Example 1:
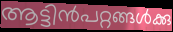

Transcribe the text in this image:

ആട്ടിൻപറ്റങ്ങൾക്കു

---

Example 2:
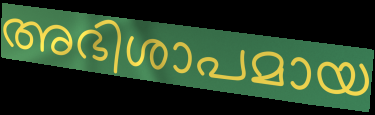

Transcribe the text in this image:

അഭിശാപമായ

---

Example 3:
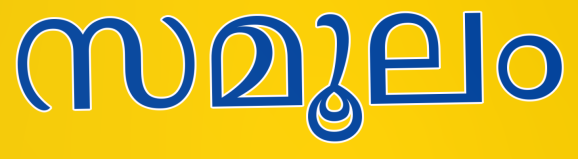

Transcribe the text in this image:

സമൂലം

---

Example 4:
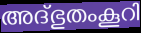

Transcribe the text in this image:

അദ്ഭുതംകൂറി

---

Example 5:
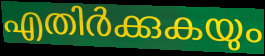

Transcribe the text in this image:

എതിർക്കുകയും